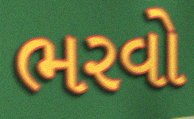
ભરવો